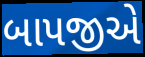
બાપજીએ